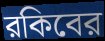
রকিবের